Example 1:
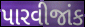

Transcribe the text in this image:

પારવીજાંક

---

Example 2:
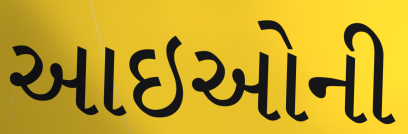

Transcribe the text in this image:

આઇઓની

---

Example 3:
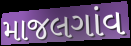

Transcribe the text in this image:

માજલગાંવ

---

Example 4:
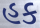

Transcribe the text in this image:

હક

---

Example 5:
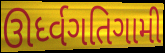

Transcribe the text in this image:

ઊર્ધ્વગતિગામી